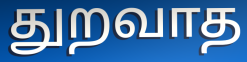
துறவாத